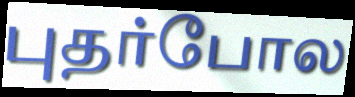
புதர்போல